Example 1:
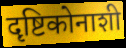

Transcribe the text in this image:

दृष्टिकोनाशी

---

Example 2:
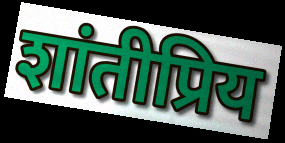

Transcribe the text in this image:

शांतीप्रिय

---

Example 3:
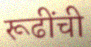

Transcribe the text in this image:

रूढींची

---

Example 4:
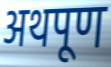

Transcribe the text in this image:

अथपूण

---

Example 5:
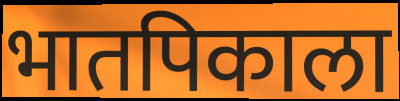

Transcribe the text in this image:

भातपिकाला